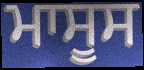
ਮਾਸੂਸ